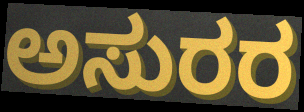
ಅಸುರರ